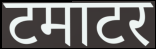
टमाटर